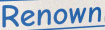
Renown